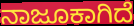
ನಾಜೂಕಾಗಿದೆ